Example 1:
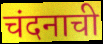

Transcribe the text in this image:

चंदनाची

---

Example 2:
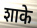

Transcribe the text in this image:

शाके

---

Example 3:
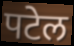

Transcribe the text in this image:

पटेल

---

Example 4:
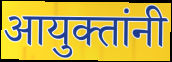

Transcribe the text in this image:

आयुक्तांनी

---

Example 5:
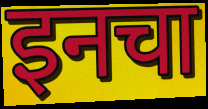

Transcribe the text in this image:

इनचा